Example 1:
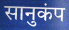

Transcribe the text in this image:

सानुकंप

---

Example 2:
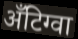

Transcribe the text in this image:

अँटिग्वा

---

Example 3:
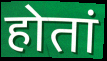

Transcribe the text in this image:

होतां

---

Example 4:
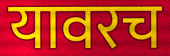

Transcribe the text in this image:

यावरच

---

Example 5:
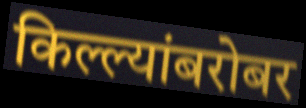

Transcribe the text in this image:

किल्ल्यांबरोबर